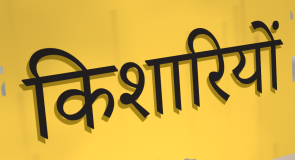
किशारियों